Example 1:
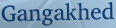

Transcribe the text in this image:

Gangakhed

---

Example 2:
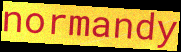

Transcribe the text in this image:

normandy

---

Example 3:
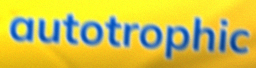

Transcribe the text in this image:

autotrophic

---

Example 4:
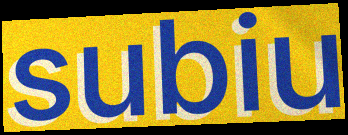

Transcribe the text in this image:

subiu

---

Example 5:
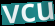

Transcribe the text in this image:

vcu